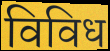
विविध